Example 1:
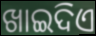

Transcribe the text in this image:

ଖାଇଦିଏ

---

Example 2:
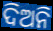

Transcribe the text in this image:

ଦିଅନି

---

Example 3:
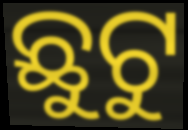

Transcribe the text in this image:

ଛୁଟୁ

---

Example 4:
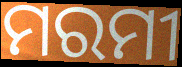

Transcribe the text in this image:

ମରମୀ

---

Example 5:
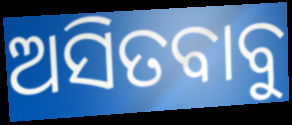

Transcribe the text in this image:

ଅସିତବାବୁ